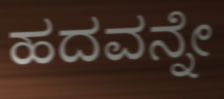
ಹದವನ್ನೇ